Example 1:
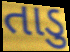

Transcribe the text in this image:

તાડુ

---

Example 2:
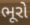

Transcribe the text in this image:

ભૂરો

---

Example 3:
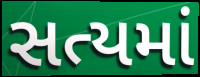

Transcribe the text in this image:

સત્યમાં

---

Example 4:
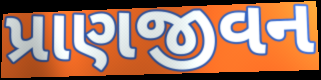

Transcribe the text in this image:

પ્રાણજીવન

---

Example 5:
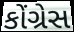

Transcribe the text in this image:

કોંગ્રેસ